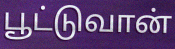
பூட்டுவான்